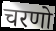
चरणो